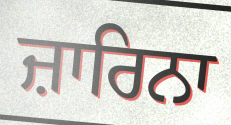
ਜ਼ਾਰਿਨਾ